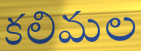
కలిమల